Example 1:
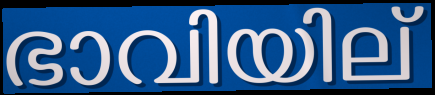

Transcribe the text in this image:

ഭാവിയില്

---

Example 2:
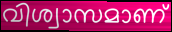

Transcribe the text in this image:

വിശ്വാസമാണ്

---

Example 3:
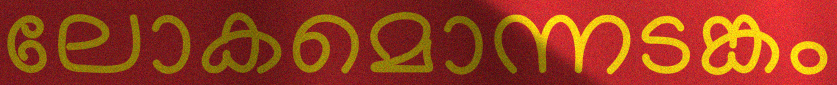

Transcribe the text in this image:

ലോകമൊന്നടങ്കം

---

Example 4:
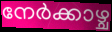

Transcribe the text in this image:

നേർക്കാഴ്ച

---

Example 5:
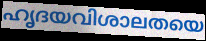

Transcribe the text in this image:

ഹൃദയവിശാലതയെ